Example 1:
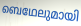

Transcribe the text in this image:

ബെഥേലുമായി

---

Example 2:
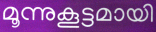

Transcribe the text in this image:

മൂന്നുകൂട്ടമായി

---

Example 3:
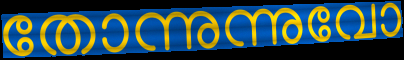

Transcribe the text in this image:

തോന്നുന്നുവോ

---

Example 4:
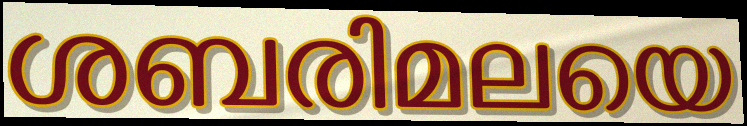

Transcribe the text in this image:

ശബരിമലയെ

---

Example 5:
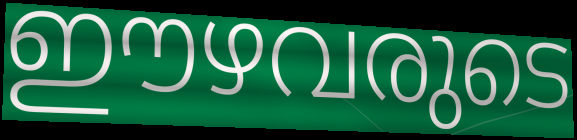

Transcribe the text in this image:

ഈഴവരുടെ